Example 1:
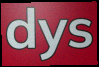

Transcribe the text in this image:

dys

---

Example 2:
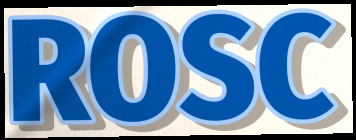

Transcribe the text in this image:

ROSC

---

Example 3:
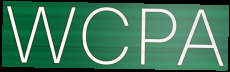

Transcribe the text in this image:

WCPA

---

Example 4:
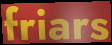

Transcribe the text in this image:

friars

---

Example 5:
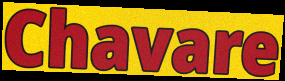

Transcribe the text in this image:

Chavare